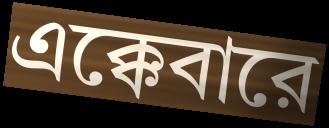
এক্কেবারে